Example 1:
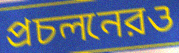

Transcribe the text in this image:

প্রচলনেরও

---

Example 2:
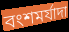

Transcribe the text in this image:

বংশমর্যাদা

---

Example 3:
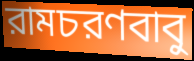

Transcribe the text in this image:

রামচরণবাবু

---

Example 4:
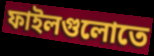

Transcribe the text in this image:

ফাইলগুলোতে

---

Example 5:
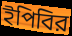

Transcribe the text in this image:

ইপিবির